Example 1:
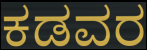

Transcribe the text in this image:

ಕಡವರ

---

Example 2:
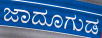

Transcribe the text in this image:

ಜಾದೂಗುಡ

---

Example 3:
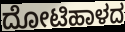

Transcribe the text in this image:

ದೋಟಿಹಾಳದ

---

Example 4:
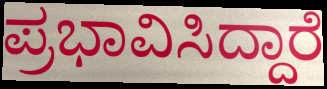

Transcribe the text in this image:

ಪ್ರಭಾವಿಸಿದ್ದಾರೆ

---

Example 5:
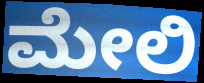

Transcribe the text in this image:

ಮೇಲಿ